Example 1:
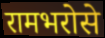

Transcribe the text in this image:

रामभरोसे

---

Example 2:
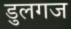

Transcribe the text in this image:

डुलगज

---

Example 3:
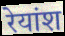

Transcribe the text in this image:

रेयांश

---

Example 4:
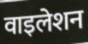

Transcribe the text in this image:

वाइलेशन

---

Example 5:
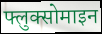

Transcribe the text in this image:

फ्लुक्सोमाइन